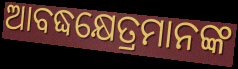
ଆବଦ୍ଧକ୍ଷେତ୍ରମାନଙ୍କ